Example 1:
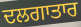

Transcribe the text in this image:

ਦਲਗਾਤਾਰ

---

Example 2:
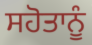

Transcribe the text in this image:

ਸਹੋਤਾਨੂੰ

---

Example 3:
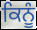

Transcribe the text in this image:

ਕਿਨੂੰ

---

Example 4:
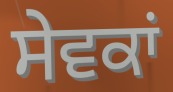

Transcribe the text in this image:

ਸੇਵਕਾਂ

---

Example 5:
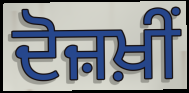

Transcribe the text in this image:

ਦੋਜ਼ਖ਼ੀਂ